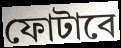
ফোটাবে